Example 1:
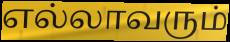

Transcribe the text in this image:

எல்லாவரும்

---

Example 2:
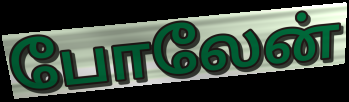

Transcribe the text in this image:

போலேன்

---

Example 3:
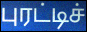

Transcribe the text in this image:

புரட்டிச்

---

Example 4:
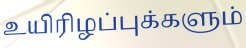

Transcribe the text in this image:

உயிரிழப்புக்களும்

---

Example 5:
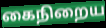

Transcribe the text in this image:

கைநிறைய